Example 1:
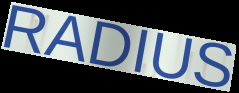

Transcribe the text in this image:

RADIUS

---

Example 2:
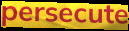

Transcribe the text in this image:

persecute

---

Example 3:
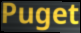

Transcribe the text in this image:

Puget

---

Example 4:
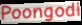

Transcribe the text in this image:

Poongodi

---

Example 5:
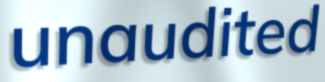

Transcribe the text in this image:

unaudited